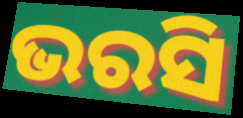
ଭରସି